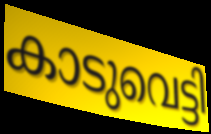
കാടുവെട്ടി